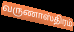
வருணாஸ்திரம்